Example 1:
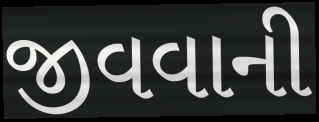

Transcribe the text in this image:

જીવવાની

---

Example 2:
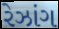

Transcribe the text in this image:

રેઝાંગ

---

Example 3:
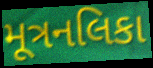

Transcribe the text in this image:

મૂત્રનલિકા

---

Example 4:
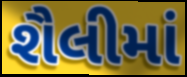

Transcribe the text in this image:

શૈલીમાં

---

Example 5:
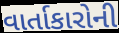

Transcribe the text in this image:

વાર્તાકારોની